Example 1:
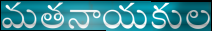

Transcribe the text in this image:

మతనాయకుల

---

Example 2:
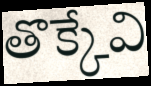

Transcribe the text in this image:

తొక్కేవి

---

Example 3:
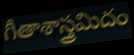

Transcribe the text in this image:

గీతాశాస్త్రమిదం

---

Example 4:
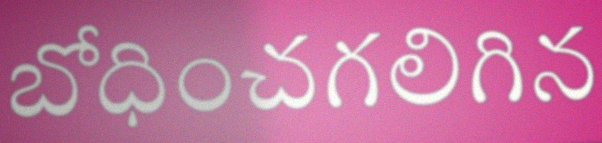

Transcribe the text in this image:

బోధించగలిగిన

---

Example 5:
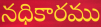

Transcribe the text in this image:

నధికారము